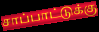
சாப்பாட்டுக்கு